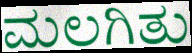
ಮಲಗಿತು